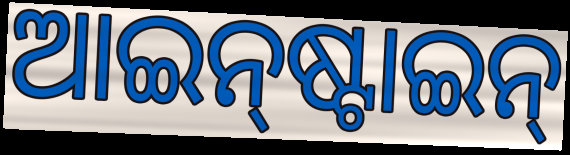
ଆଇନ୍‌ଷ୍ଟାଇନ୍